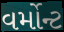
વર્મોન્ટ